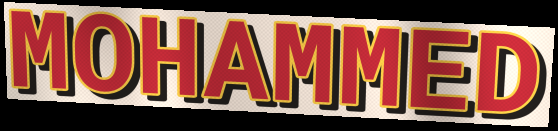
MOHAMMED